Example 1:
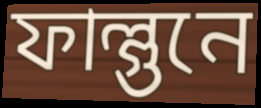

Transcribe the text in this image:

ফাল্গুনে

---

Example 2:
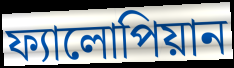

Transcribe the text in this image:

ফ্যালোপিয়ান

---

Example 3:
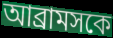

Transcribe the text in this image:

আব্রামসকে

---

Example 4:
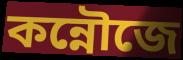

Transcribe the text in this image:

কন্নৌজে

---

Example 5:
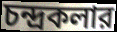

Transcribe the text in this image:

চন্দ্রকলার